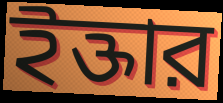
ইক্তার